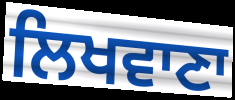
ਲਿਖਵਾਣਾ